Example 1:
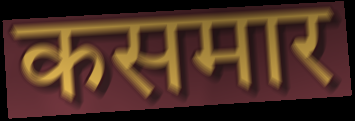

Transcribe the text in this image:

कसमार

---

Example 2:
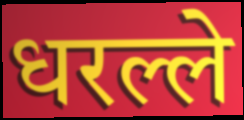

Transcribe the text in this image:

धरल्ले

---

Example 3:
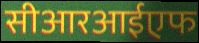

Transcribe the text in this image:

सीआरआईएफ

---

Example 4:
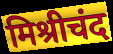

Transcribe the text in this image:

मिश्रीचंद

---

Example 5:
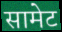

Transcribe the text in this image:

सामेट